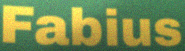
Fabius